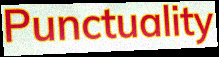
Punctuality